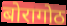
बोरागोठ